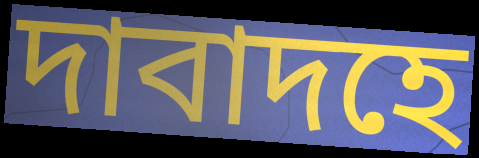
দাবাদহে